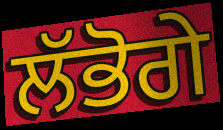
ਲੱਭੋਗੇ